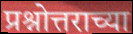
प्रश्नोत्तराच्या